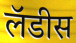
लॅडीस